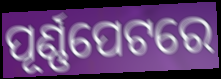
ପୂର୍ଣ୍ଣପେଟରେ